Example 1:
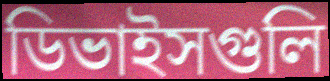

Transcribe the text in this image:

ডিভাইসগুলি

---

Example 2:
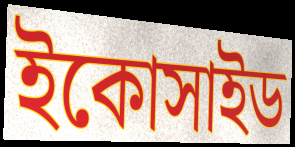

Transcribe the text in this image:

ইকোসাইড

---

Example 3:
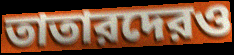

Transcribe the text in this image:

তাতারদেরও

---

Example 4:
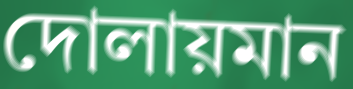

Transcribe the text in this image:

দোলায়মান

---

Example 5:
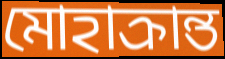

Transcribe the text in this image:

মোহাক্রান্ত